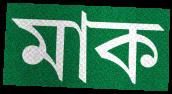
মাক